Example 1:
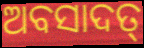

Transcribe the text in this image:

ଅବସାଦତ୍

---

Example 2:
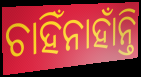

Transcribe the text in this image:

ଚାହିଁନାହାଁନ୍ତି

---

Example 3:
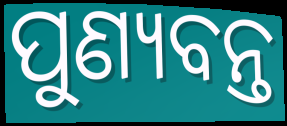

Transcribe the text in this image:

ପୁଣ୍ୟବନ୍ତ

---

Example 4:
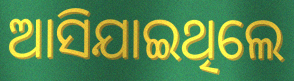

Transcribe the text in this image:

ଆସିଯାଇଥିଲେ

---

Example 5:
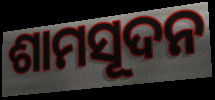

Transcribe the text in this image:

ଶାମସୂଦନ